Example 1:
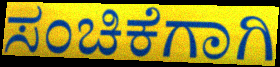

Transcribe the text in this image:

ಸಂಚಿಕೆಗಾಗಿ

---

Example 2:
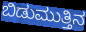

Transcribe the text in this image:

ಬಿಡುಮುತ್ತಿನ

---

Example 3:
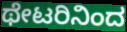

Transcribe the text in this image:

ಥೇಟರಿನಿಂದ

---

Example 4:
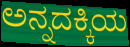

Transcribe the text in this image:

ಅನ್ನದಕ್ಕಿಯ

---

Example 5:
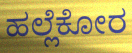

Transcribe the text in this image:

ಹಲ್ಲೆಕೋರ